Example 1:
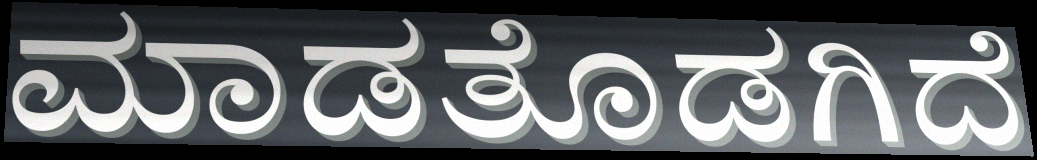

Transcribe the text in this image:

ಮಾಡತೊಡಗಿದೆ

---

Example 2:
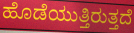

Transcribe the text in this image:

ಹೊಡೆಯುತ್ತಿರುತ್ತದೆ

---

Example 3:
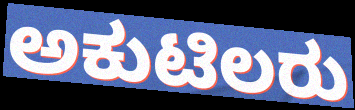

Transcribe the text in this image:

ಅಕುಟಿಲರು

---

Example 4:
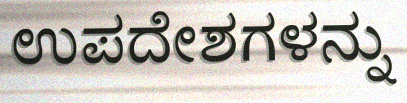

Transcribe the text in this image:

ಉಪದೇಶಗಳನ್ನು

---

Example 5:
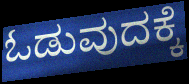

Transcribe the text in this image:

ಓಡುವುದಕ್ಕೆ